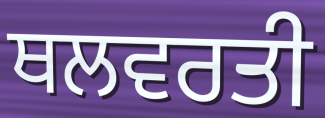
ਥਲਵਰਤੀ